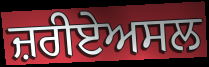
ਜ਼ਰੀਏਅਸਲ